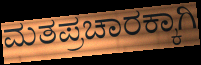
ಮತಪ್ರಚಾರಕ್ಕಾಗಿ